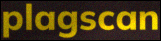
plagscan